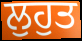
ਲੁਹੁਤ